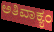
ಅತಿವಾಕ್ಯಂ